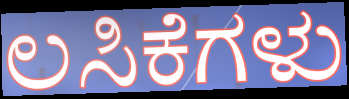
ಲಸಿಕೆಗಳು